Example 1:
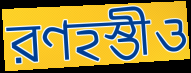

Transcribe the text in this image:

রণহস্তীও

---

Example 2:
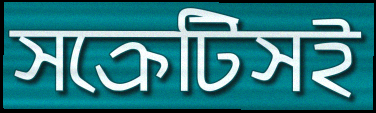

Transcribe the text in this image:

সক্রেটিসই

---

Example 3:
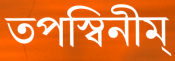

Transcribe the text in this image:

তপস্বিনীম্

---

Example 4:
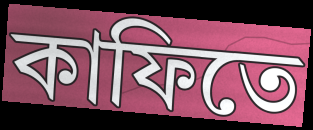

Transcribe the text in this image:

কাফিতে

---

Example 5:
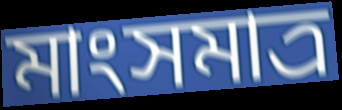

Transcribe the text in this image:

মাংসমাত্র